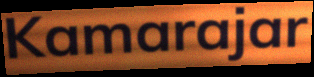
Kamarajar